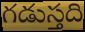
గడుస్తది